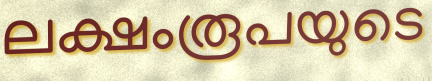
ലക്ഷംരൂപയുടെ